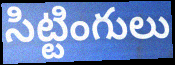
సిట్టింగులు